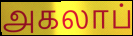
அகலாப்